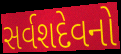
સર્વશદેવનો